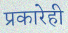
प्रकारेही